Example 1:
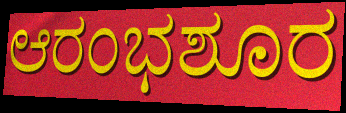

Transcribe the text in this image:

ಆರಂಭಶೂರ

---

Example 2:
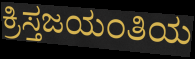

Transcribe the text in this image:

ಕ್ರಿಸ್ತಜಯಂತಿಯ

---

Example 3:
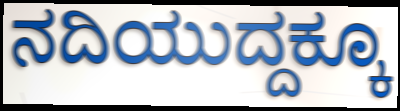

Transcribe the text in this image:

ನದಿಯುದ್ದಕ್ಕೂ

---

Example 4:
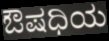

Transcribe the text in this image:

ಔಷಧಿಯ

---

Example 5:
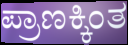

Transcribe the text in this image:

ಪ್ರಾಣಕ್ಕಿಂತ